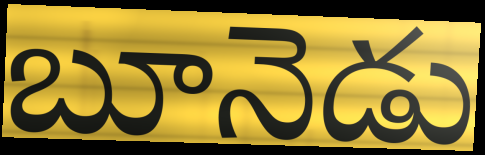
బూనెడు